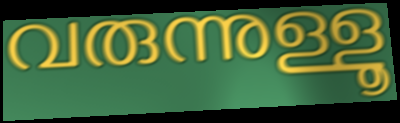
വരുന്നുള്ളൂ